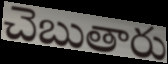
చెబుతారు